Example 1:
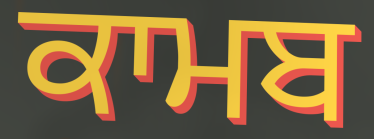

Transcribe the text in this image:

ਕਾਮਬ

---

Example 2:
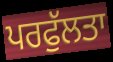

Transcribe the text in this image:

ਪਰਫੁੱਲਤਾ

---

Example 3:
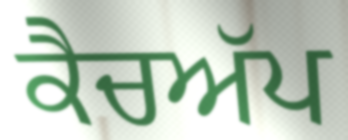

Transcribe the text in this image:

ਕੈਚਅੱਪ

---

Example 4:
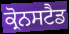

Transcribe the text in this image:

ਕ੍ਰੋਨਸਟੈਡ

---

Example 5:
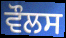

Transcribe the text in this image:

ਵੌਲਸ